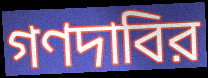
গণদাবির